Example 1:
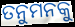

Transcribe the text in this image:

ତନୁମନକୁ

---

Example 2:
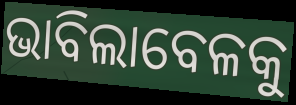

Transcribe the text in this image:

ଭାବିଲାବେଳକୁ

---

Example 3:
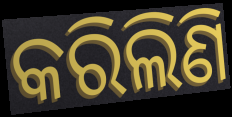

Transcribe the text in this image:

କରିଲିଣି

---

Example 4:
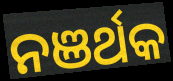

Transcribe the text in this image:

ନଞର୍ଥକ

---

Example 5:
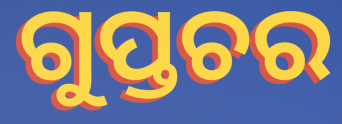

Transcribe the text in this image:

ଗୁପ୍ତଚର